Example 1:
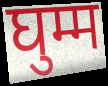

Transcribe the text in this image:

घुम्म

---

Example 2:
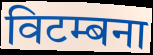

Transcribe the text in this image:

विटम्बना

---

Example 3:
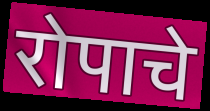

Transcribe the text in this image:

रोपाचे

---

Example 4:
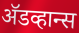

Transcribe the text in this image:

ॲडव्हान्स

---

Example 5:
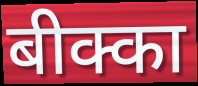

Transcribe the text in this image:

बीक्का